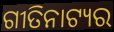
ଗୀତିନାଟ୍ୟର